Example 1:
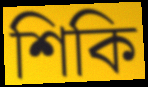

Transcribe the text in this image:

শিকি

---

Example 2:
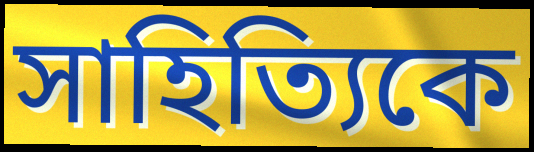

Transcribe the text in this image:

সাহিত্যিকে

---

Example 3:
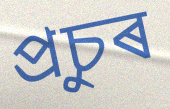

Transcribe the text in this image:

প্ৰচুৰ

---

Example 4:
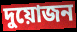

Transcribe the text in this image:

দুয়োজন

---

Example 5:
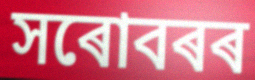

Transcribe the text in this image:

সৰোবৰৰ